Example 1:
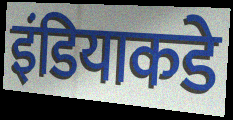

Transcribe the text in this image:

इंडियाकडे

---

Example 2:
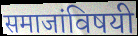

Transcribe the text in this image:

समाजांविषयी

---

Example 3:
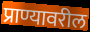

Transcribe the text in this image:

प्राण्यावरील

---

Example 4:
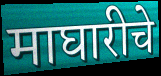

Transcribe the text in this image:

माघारीचे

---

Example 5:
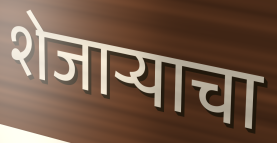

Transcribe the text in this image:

शेजार्‍याचा